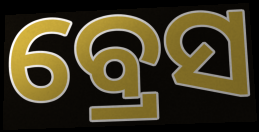
ବ୍ରେସ